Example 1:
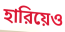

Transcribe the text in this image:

হারিয়েও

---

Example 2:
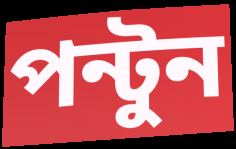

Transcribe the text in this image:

পন্টুন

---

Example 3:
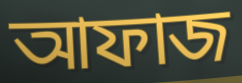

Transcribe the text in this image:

আফাজ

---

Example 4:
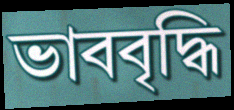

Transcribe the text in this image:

ভাববৃদ্ধি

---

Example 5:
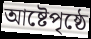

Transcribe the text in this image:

আষ্টেপৃষ্ঠে